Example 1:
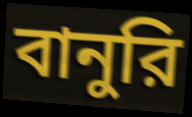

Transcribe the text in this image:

বানুরি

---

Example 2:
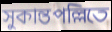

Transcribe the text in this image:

সুকান্তপল্লিতে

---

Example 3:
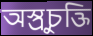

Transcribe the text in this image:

অস্ত্রচুক্তি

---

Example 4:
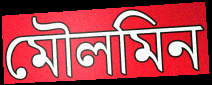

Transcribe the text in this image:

মৌলমিন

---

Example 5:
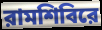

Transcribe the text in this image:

রামশিবিরে